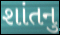
શાંતનુ